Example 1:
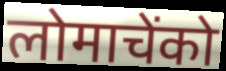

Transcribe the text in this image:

लोमाचेंको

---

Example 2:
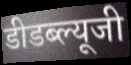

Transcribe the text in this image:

डीडब्ल्यूजी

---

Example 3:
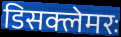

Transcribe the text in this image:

डिसक्लेमरः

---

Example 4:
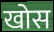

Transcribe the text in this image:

खोस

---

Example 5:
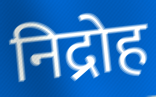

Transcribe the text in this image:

निद्रोह